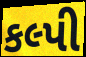
કલ્પી